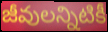
జీవులన్నిటికీ